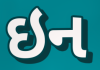
ઇન